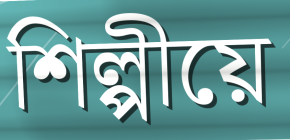
শিল্পীয়ে